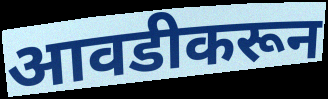
आवडीकरून